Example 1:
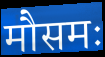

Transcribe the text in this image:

मौसमः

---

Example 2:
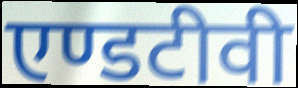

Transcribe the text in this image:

एण्डटीवी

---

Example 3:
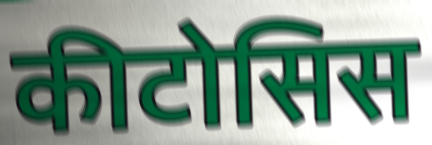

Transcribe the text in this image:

कीटोसिस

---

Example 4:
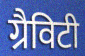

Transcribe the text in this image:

ग्रैविटी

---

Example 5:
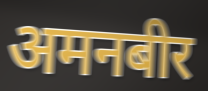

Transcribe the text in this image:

अमनबीर